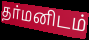
தர்மனிடம்